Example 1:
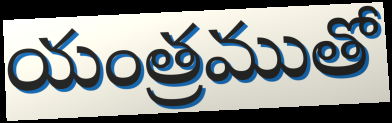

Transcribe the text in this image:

యంత్రముతో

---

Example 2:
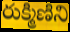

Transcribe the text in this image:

రుక్మిణిని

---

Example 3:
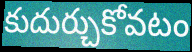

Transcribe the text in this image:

కుదుర్చుకోవటం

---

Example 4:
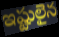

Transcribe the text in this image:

ఇష్టులైన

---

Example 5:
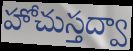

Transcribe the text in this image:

హోచుస్తద్వా